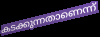
കടക്കുന്നതാണെന്ന്